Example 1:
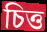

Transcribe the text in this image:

চিত্ত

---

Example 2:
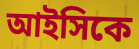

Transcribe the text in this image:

আইসিকে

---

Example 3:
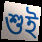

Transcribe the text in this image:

শুই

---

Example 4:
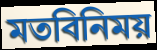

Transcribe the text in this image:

মতবিনিময়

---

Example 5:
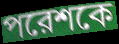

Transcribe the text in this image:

পরেশকে